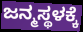
ಜನ್ಮಸ್ಥಳಕ್ಕೆ